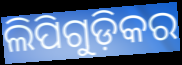
ଲିପିଗୁଡ଼ିକର